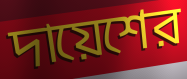
দায়েশের